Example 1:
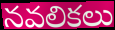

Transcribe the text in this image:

నవలికలు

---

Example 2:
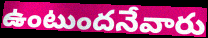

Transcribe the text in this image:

ఉంటుందనేవారు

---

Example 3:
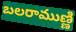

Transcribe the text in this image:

బలరాముణ్ణి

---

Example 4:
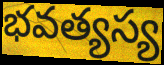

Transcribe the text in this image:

భవత్యస్య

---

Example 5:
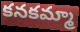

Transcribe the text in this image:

కనకమ్మా